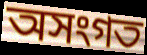
অসংগত